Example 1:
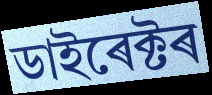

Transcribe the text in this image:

ডাইৰেক্টৰ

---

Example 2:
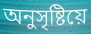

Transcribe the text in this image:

অনুসৃষ্টিয়ে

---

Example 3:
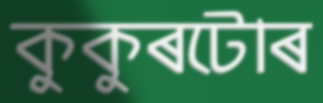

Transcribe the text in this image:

কুকুৰটোৰ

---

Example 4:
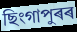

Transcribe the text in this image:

ছিংগাপুৰৰ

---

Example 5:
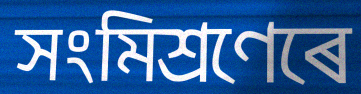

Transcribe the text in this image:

সংমিশ্ৰণেৰে